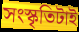
সংস্কৃতিটাই